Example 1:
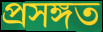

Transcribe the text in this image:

প্ৰসঙ্গত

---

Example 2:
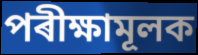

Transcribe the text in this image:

পৰীক্ষামূলক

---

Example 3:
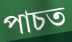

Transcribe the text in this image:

পাচত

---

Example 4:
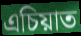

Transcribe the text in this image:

এচিয়াত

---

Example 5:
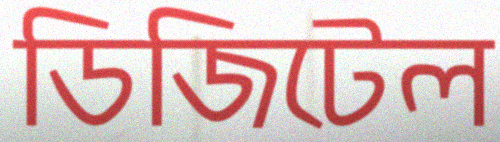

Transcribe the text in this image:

ডিজিটেল